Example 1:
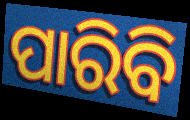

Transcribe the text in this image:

ପାରିବି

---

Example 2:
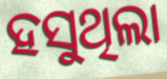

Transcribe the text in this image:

ହସୁଥିଲା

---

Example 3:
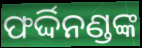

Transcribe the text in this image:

ଫର୍ଦ୍ଦିନଣ୍ଡଙ୍କ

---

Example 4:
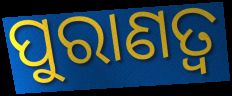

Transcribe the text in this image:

ପୁରାଣତ୍ୱ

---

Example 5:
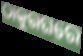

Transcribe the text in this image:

ଠାକୁରଘରେ